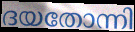
ദയതോന്നി